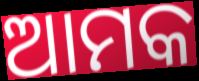
ଆମକ